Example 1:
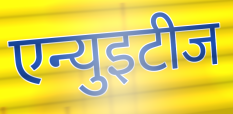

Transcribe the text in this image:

एन्युइटीज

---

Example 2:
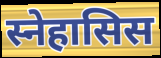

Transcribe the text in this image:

स्नेहासिस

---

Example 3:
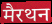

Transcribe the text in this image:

मैरथन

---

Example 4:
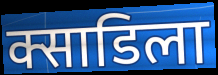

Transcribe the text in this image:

क्साडिला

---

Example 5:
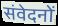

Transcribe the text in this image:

संवेदनों